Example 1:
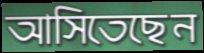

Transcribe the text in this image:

আসিতেছেন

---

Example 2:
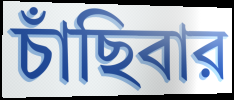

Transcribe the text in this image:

চাঁছিবার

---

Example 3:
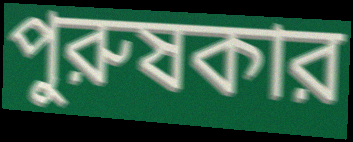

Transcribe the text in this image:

পুরুষকার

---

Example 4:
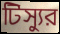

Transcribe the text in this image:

টিস্যুর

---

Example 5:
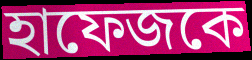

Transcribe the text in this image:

হাফেজকে